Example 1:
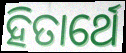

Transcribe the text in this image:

ହିତାର୍ଥେ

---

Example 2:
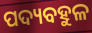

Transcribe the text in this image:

ପଦ୍ୟବହୁଳ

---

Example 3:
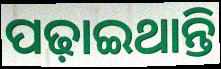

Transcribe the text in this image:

ପଢ଼ାଇଥାନ୍ତି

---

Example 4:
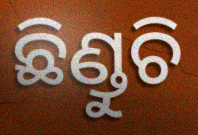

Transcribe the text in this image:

ଛିଣ୍ଡୁଚି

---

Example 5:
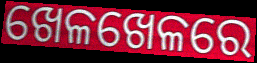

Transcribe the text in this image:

ଖେଳଖେଳରେ